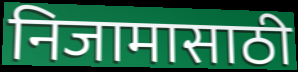
निजामासाठी